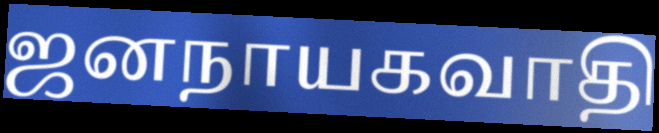
ஜனநாயகவாதி